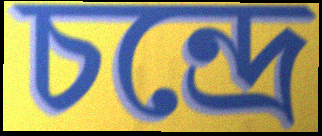
চন্দ্রে